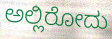
ಅಲ್ಲಿರೋದು